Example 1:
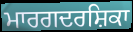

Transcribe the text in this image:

ਮਾਰਗਦਰਸ਼ਿਕਾ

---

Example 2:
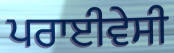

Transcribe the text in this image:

ਪਰਾਈਵੇਸੀ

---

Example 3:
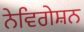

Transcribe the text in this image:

ਨੇਵਿਗੇਸ਼ਨ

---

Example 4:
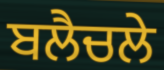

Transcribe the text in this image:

ਬਲੈਚਲੇ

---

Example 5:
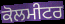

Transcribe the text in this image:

ਕੋਲਮੀਟਰ